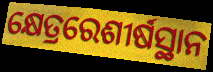
କ୍ଷେତ୍ରରେଶୀର୍ଷସ୍ଥାନ